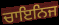
ਚਾਇਨਿਜ